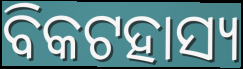
ବିକଟହାସ୍ୟ